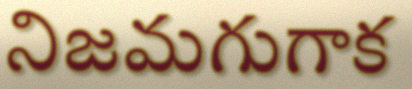
నిజమగుగాక